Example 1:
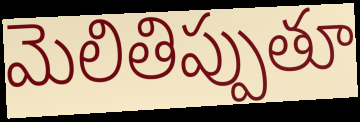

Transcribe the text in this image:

మెలితిప్పుతూ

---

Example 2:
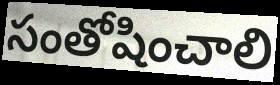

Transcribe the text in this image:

సంతోషించాలి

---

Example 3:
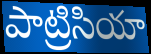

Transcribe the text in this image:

పాట్రిసియా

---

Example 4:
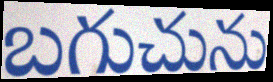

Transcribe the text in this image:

బగుచును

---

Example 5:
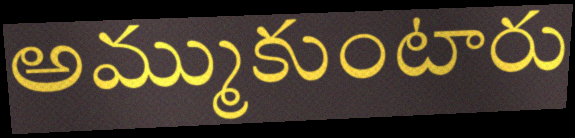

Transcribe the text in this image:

అమ్ముకుంటారు